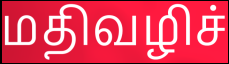
மதிவழிச்